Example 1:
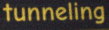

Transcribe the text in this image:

tunneling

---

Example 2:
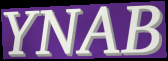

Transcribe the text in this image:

YNAB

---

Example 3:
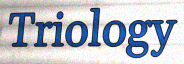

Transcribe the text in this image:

Triology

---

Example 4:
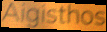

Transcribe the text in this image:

Aigisthos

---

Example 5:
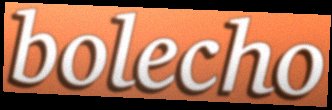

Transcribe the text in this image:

bolecho